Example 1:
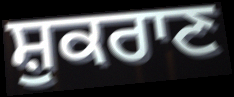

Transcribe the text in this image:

ਸ਼ੁਕਰਾਣ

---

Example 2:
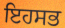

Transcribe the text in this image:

ਇਹਸਭ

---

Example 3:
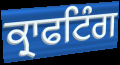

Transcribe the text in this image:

ਕ੍ਰਾਫਟਿੰਗ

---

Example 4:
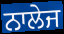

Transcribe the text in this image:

ਨਾਲੇਜ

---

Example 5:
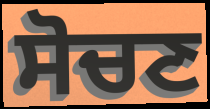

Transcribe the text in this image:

ਸੋਚਣ